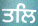
ਤਲਿ